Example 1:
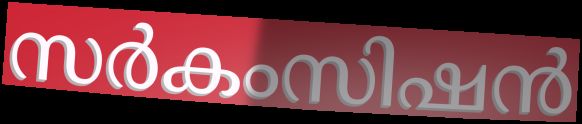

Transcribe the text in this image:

സർകംസിഷൻ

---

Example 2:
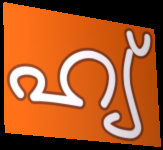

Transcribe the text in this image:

ഹ്യ്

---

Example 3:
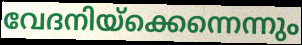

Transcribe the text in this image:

വേദനിയ്ക്കെന്നെന്നും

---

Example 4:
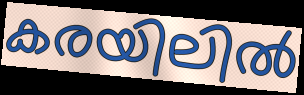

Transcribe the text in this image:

കരയിലിൽ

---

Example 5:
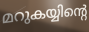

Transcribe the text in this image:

മറുകയ്യിന്റെ